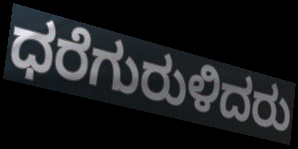
ಧರೆಗುರುಳಿದರು